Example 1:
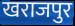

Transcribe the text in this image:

खराजपुर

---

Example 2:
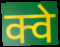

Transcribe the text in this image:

क्वे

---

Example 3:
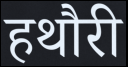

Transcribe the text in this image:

हथौरी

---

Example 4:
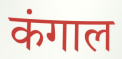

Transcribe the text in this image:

कंगाल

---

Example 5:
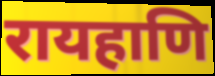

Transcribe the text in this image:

रायहाणि